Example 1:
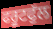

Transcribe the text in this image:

ਫਰੂਟਫੁੱਲ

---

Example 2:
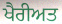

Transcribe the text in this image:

ਖੈਰੀਅਤ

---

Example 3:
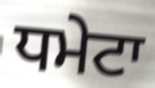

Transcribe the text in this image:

ਧਮੇਟਾ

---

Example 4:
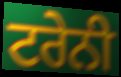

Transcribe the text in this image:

ਟਰੇਨੀ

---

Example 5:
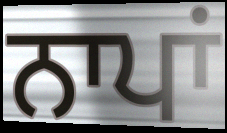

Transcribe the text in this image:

ਨਾਪਾਂ